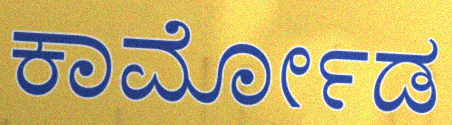
ಕಾರ್ಮೋಡ